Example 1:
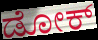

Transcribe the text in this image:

ಡೋಕ್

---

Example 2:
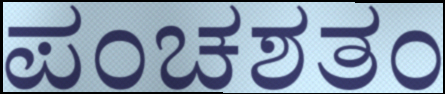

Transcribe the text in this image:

ಪಂಚಶತಂ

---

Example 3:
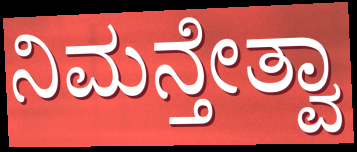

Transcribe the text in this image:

ನಿಮನ್ತೇತ್ವಾ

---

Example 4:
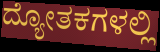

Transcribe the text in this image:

ದ್ಯೋತಕಗಳಲ್ಲಿ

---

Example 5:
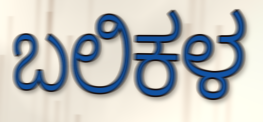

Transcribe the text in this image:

ಬಲಿಕಳ